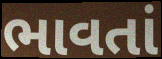
ભાવતાં